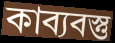
কাব্যবস্তু